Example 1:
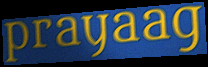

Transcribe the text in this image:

prayaag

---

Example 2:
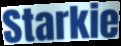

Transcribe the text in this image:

Starkie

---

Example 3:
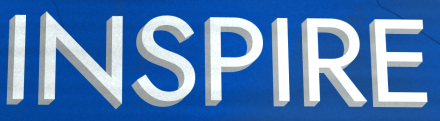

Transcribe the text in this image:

INSPIRE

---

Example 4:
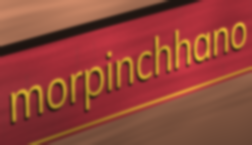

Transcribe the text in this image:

morpinchhano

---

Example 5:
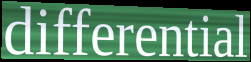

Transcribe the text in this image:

differential